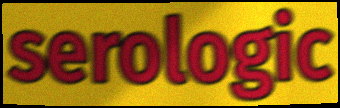
serologic